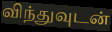
விந்துவுடன்